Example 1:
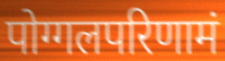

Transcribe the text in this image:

पोग्गलपरिणामं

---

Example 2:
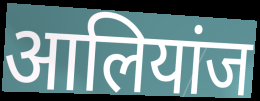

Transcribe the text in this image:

आलियांज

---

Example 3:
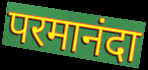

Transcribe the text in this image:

परमानंदा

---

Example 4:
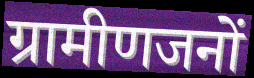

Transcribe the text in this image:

ग्रामीणजनों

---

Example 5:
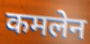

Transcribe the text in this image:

कमलेन